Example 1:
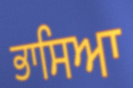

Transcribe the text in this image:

ਭਾਸਿਆ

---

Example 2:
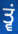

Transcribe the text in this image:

ਤ੍ਵਂ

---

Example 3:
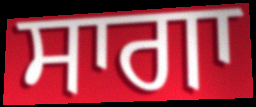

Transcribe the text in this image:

ਸਾਗਾ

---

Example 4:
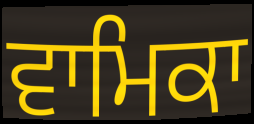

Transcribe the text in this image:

ਵਾਮਿਕਾ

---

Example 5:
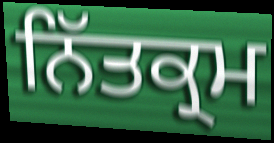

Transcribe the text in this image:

ਨਿੱਤਕ੍ਰਮ